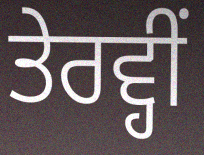
ਤੇਰਵ੍ਹੀਂ